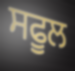
ਸਫੂਲ